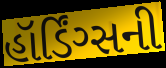
હૉર્ડિંગ્સની